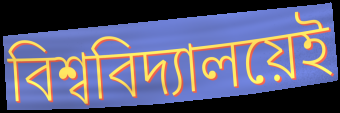
বিশ্ববিদ্যালয়েই